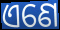
ଏଣେ